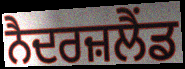
ਨੈਦਰਜ਼ਲੈਂਡ